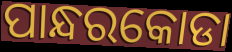
ପାନ୍ଧରକୋଡା